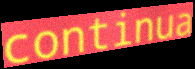
continua